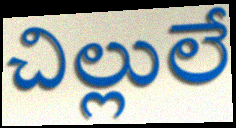
చిల్లులే